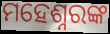
ମହେଶ୍ନରଙ୍କ